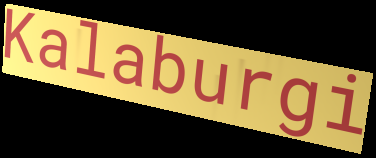
Kalaburgi